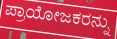
ಪ್ರಾಯೋಜಕರನ್ನು